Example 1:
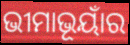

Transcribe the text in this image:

ଭୀମାଭୂୟାଁର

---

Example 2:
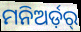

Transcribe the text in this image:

ମନିଅର୍ଡ଼ର୍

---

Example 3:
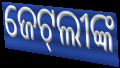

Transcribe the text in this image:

ଜେଟ୍‌ଲୀଙ୍କ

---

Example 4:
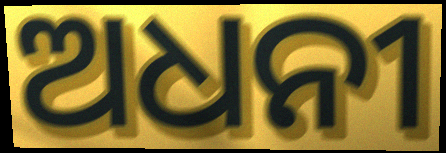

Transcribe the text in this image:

ଅଧନୀ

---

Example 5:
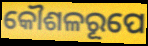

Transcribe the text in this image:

କୌଶଳରୂପେ